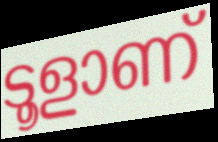
ടൂളാണ്